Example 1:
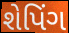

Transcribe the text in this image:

શેપિંગ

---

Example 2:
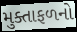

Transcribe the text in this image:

મુક્તાફળનો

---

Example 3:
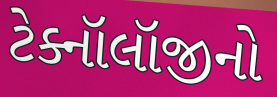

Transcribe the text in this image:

ટેક્નૉલૉજીનો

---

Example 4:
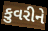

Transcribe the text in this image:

કુવરીને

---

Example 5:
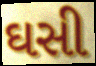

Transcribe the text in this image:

ઘસી